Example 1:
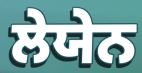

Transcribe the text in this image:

ਲੇਯੇਨ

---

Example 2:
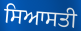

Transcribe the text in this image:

ਸਿਆਸਤੀ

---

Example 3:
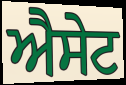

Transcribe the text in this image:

ਐਸੇਟ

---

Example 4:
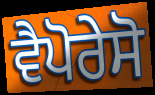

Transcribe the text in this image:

ਵੈਪੋਰੇਸੋ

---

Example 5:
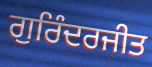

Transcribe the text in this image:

ਗੁਰਿੰਦਰਜੀਤ